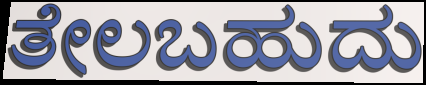
ತೇಲಬಹುದು